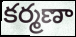
కర్మణా